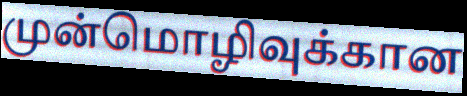
முன்மொழிவுக்கான